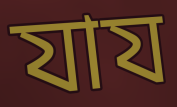
যায